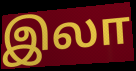
இலா